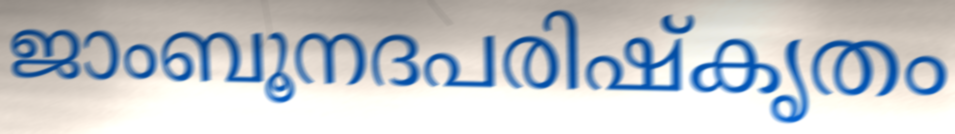
ജാംബൂനദപരിഷ്കൃതം